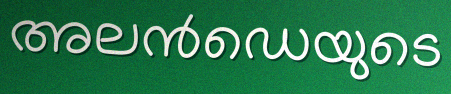
അലൻഡെയുടെ